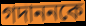
গদাননকে